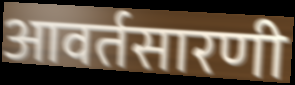
आवर्तसारणी